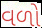
વળો